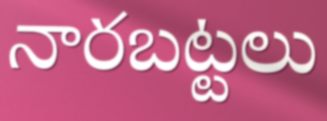
నారబట్టలు